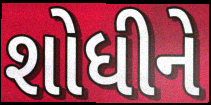
શોધીને